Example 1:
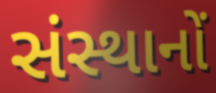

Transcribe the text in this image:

સંસ્થાનોં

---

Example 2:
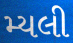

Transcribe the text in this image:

મ્યલી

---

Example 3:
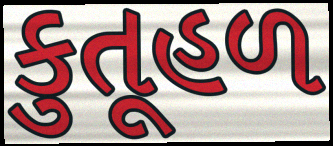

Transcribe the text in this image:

કુતૂહળ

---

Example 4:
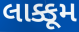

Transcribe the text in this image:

લાક્કૂમ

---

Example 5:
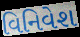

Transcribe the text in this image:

વિનિવેશ